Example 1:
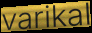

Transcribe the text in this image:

varikal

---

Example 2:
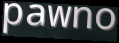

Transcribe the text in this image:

pawno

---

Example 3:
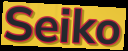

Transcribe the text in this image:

Seiko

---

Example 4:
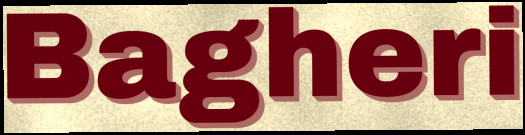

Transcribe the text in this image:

Bagheri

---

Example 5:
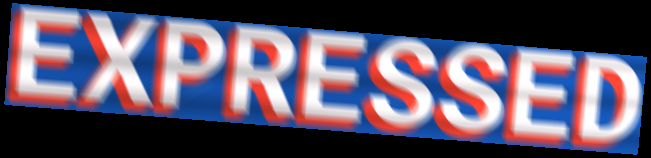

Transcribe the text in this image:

EXPRESSED